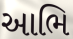
આભિ